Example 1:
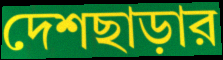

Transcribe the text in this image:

দেশছাড়ার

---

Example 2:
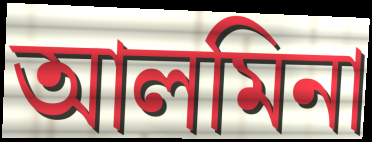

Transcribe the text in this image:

আলমিনা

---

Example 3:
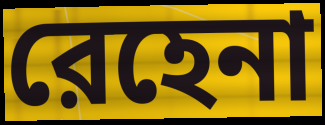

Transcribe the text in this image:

রেহেনা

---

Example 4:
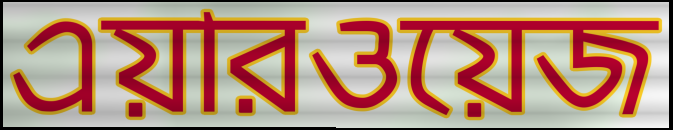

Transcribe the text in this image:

এয়ারওয়েজ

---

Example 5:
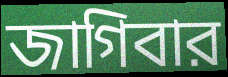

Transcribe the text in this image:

জাগিবার